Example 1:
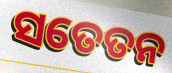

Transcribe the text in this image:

ସତେତନ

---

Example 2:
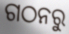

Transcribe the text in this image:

ଗଠନରୁ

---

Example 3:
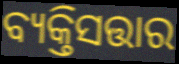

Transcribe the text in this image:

ବ୍ୟକ୍ତିସତ୍ତାର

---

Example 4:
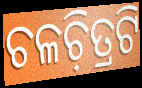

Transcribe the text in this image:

ଚଳଚ଼ିତ୍ରଟି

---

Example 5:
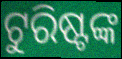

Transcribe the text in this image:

ଟୁରିଷ୍ଟଙ୍କ